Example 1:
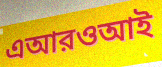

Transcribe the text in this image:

এআরওআই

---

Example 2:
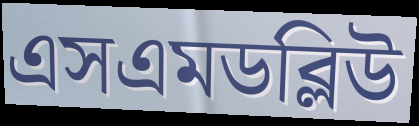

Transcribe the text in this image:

এসএমডব্লিউ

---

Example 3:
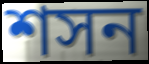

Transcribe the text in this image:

শসন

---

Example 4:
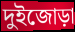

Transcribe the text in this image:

দুইজোড়া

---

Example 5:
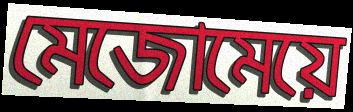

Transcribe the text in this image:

মেজোমেয়ে